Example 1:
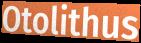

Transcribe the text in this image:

Otolithus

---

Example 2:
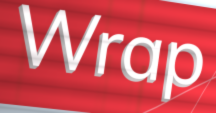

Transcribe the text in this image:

Wrap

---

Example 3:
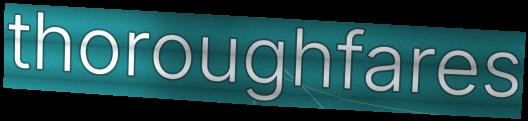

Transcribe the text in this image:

thoroughfares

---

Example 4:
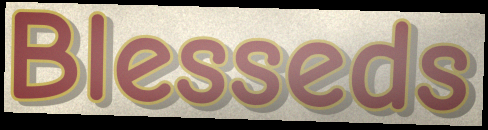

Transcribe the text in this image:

Blesseds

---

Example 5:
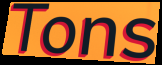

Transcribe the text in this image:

Tons